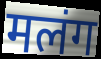
मलंग